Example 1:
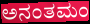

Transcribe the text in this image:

ಅನಂತಮಂ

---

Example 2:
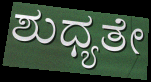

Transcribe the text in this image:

ಶುಧ್ಯತೇ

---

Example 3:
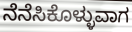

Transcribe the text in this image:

ನೆನೆಸಿಕೊಳ್ಳುವಾಗ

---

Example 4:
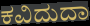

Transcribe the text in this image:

ಕವಿದುದಾ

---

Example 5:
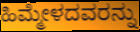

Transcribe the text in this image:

ಹಿಮ್ಮೇಳದವರನ್ನು